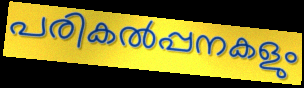
പരികൽപ്പനകളും